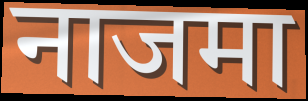
नाजमा